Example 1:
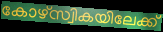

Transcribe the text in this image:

കോഴ്സ്വികയിലേക്ക്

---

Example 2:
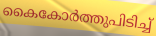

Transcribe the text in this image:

കൈകോർത്തുപിടിച്ച്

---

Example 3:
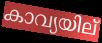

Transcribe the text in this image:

കാവ്യയില്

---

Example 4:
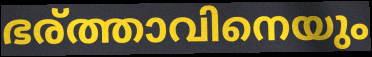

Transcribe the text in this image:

ഭര്ത്താവിനെയും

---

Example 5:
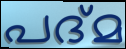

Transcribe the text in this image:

പദ്മ